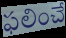
ఫలించే